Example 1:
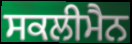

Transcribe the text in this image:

ਸਕਲੀਮੈਨ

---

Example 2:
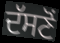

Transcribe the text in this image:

ਦੱਸਣੋਂ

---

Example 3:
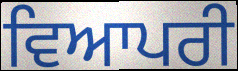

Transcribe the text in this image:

ਵਿਆਪਰੀ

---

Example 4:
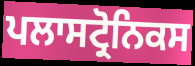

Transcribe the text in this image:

ਪਲਾਸਟ੍ਰੋਨਿਕਸ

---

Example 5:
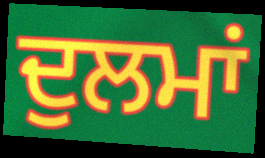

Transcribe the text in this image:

ਦੁਲਮਾਂ